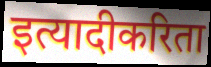
इत्यादीकरिता